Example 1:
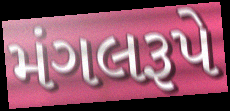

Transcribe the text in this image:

મંગલરૂપે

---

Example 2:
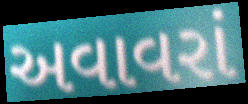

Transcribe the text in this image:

અવાવરાં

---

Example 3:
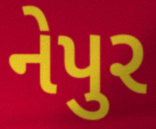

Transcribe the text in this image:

નેપુર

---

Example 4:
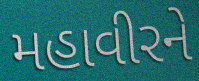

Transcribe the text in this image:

મહાવીરને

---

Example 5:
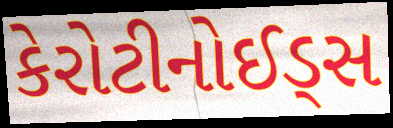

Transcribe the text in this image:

કેરોટીનોઈડ્સ